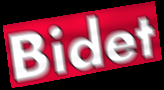
Bidet